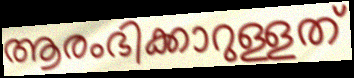
ആരംഭിക്കാറുള്ളത്